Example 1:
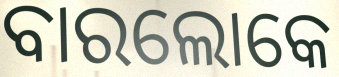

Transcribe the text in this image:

ବାରଲୋକେ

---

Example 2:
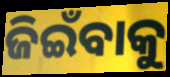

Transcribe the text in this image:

ଜିଇଁବାକୁ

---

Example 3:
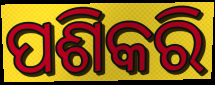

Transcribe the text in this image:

ପଶିକରି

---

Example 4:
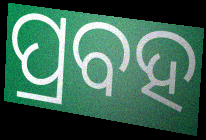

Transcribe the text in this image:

ପ୍ରବହ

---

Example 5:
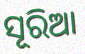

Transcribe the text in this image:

ସୂରିଆ